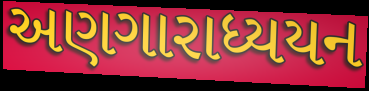
અણગારાધ્યયન